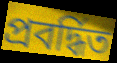
প্রবর্দ্ধিত